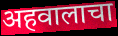
अहवालाचा